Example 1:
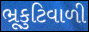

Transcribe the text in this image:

ભ્રૂકુટિવાળી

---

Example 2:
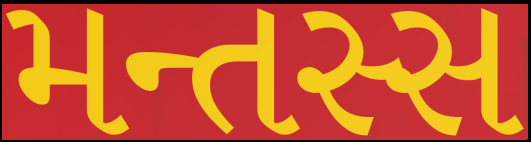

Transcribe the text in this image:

મન્તસ્સ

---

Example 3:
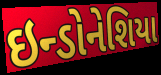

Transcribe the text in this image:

ઇન્ડોનેશિયા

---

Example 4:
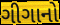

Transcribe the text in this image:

ગીગાનો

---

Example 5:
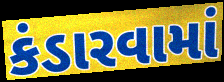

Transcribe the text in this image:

કંડારવામાં